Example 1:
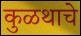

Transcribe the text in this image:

कुळथाचे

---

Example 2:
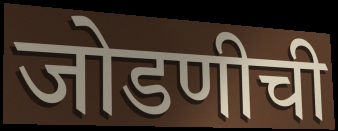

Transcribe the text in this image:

जोडणीची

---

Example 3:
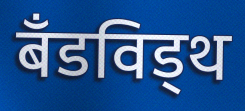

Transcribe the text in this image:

बँडविड्थ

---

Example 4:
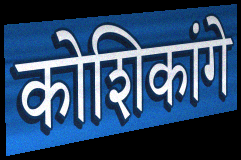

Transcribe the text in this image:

कोशिकांगे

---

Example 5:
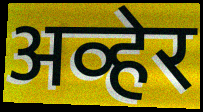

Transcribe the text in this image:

अव्हेर